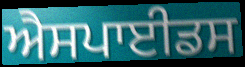
ਐਸਪਾਈਡਸ